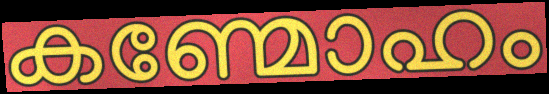
കണ്മോഹം